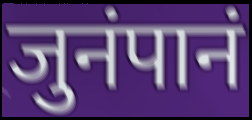
जुनंपानं